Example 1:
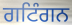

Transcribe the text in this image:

ਗਟਿੰਗਨ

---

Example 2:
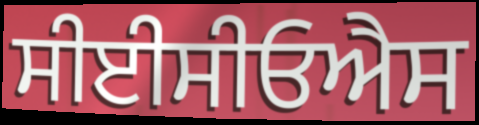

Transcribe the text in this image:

ਸੀਈਸੀਓਐਸ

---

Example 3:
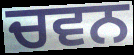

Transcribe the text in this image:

ਚਵਨ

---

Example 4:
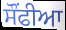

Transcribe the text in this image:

ਸੌਂਫੀਆ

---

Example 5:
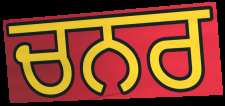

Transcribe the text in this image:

ਚਨਰ